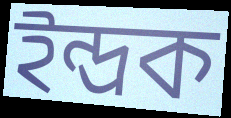
ইন্দ্ৰক